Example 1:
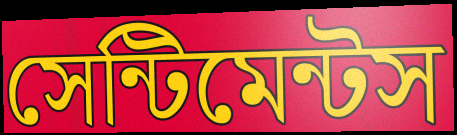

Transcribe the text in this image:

সেন্টিমেন্টস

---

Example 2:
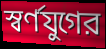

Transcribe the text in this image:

স্বর্ণযুগের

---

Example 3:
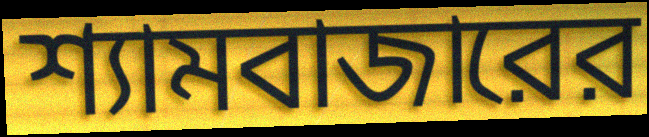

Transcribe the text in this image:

শ্যামবাজারের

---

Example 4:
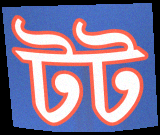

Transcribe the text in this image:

টট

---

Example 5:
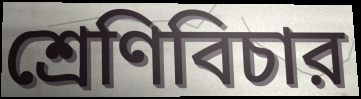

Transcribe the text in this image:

শ্রেণিবিচার